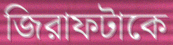
জিরাফটাকে